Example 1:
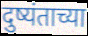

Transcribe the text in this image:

दुष्यंताच्या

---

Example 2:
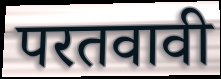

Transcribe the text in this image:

परतवावी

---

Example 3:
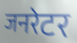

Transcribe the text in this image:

जनरेटर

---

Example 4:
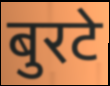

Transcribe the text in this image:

बुरटे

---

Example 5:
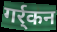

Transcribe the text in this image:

गर्र्कन